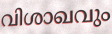
വിശാഖവും